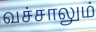
வச்சாலும்